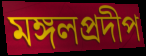
মঙ্গলপ্রদীপ